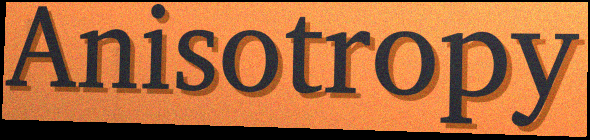
Anisotropy